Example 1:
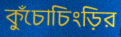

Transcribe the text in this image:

কুঁচোচিংড়ির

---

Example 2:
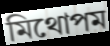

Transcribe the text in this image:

মিথোপম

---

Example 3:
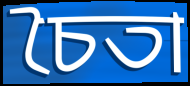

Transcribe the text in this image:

চৈতা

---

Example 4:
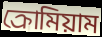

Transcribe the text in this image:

ক্রোমিয়াম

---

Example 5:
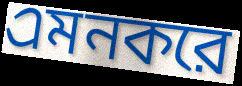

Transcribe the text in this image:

এমনকরে